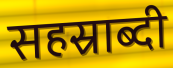
सहस्राब्दी